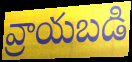
వ్రాయబడి